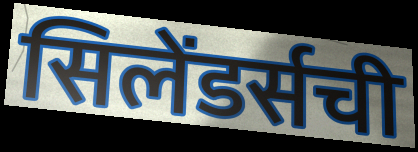
सिलेंडर्सची